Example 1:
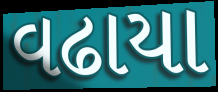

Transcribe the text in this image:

વઢાયા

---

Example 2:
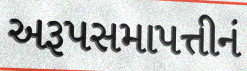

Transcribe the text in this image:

અરૂપસમાપત્તીનં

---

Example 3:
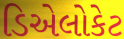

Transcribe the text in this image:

ડિએલોકેટ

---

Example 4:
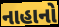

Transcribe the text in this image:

નાહાનો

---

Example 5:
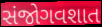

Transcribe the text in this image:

સંજોગવશાત